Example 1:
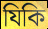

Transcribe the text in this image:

যিকি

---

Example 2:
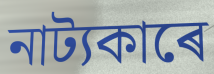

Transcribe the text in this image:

নাট্যকাৰে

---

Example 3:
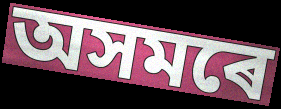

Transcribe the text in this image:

অসমৰে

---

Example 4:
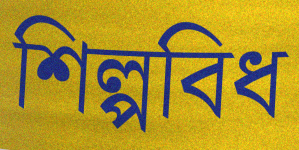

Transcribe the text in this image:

শিল্পবিধ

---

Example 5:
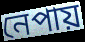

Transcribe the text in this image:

নেপায়